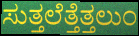
ಸುತ್ತಲೆತ್ತೆತ್ತಲುಂ